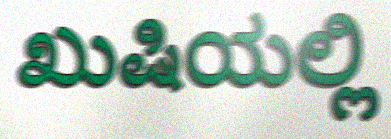
ಖುಷಿಯಲ್ಲಿ